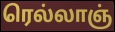
ரெல்லாஞ்